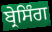
ਬ੍ਰੇਸਿੰਗ